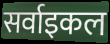
सर्वाइकल